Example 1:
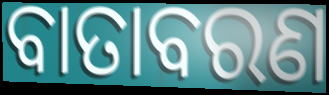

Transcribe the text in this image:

ବାତାବରଣ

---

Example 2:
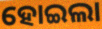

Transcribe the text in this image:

ହୋଇଲା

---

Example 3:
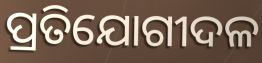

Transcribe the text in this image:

ପ୍ରତିଯୋଗୀଦଳ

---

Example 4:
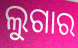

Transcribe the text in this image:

ଲୁଗାର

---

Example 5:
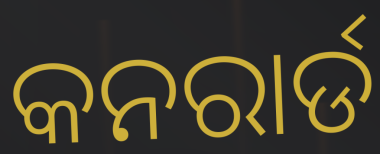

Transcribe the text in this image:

କନରାର୍ଡ